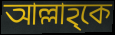
আল্লাহ্কে